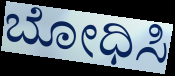
ಬೋಧಿಸಿ